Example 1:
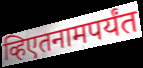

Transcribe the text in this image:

व्हिएतनामपर्यंत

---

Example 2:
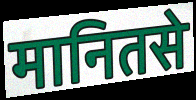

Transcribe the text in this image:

मानितसे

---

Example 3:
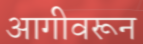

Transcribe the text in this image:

आगीवरून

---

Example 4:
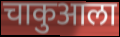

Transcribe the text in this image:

चाकुआला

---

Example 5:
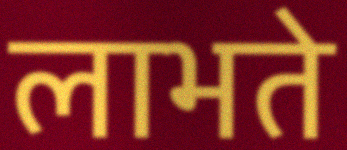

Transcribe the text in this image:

लाभते